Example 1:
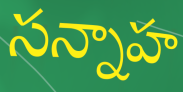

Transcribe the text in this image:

సన్నాహ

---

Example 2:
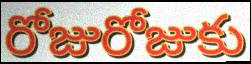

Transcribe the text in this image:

రోజురోజుకు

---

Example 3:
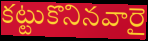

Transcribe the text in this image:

కట్టుకొనినవారై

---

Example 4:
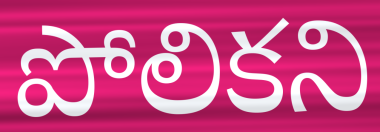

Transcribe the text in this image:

పోలికని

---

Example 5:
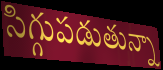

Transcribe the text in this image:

సిగ్గుపడుతున్నా